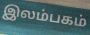
இலம்பகம்